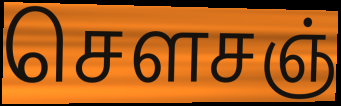
செளசஞ்